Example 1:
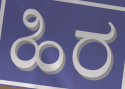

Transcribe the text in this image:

ಹಿರ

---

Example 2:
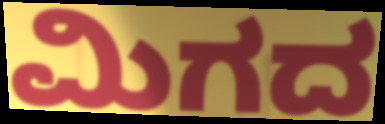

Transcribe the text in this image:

ಮಿಗದ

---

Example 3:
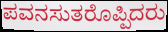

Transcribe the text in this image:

ಪವನಸುತರೊಪ್ಪಿದರು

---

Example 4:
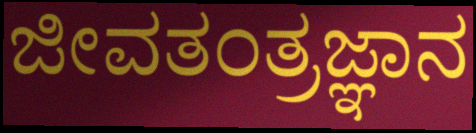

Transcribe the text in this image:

ಜೀವತಂತ್ರಜ್ಞಾನ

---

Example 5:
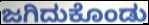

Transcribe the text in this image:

ಜಗಿದುಕೊಂಡು